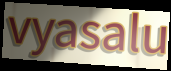
vyasalu